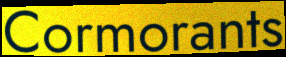
Cormorants